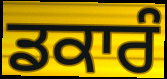
ਡਕਾਰੰ